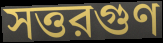
সত্তরগুণ